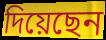
দিয়েছেন